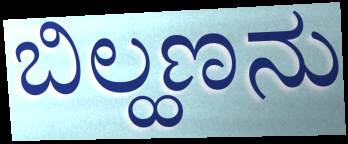
ಬಿಲ್ಹಣನು